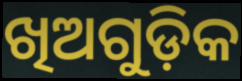
ଖିଅଗୁଡ଼ିକ